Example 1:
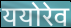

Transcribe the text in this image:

ययोरेव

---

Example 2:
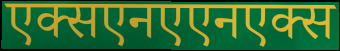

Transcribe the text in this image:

एक्सएनएएनएक्स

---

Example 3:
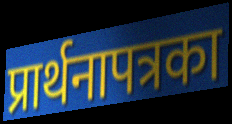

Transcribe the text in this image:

प्रार्थनापत्रका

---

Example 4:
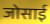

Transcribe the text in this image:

जोसाई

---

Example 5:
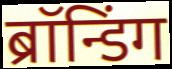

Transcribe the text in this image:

ब्रॉन्डिंग